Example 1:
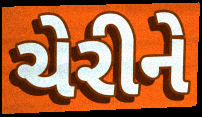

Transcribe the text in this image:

ચેરીને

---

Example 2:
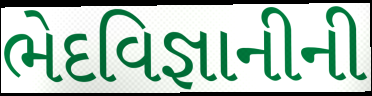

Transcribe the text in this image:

ભેદવિજ્ઞાનીની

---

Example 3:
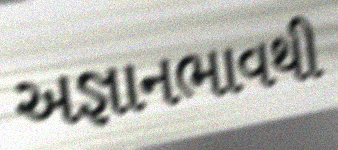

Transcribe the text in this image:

અજ્ઞાનભાવથી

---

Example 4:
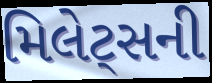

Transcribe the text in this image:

મિલેટ્સની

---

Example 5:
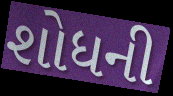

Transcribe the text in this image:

શોધની